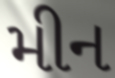
મીન